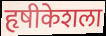
हृषीकेशला